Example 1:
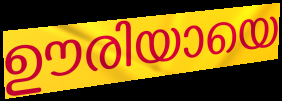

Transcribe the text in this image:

ഊരിയായെ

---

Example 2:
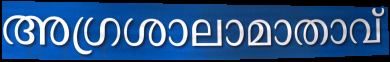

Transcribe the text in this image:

അഗ്രശാലാമാതാവ്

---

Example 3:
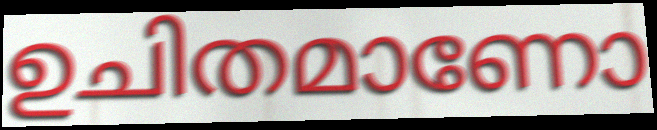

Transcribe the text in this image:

ഉചിതമാണോ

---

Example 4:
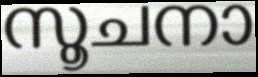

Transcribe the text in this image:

സൂചനാ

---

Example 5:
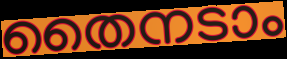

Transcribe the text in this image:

തൈനടാം